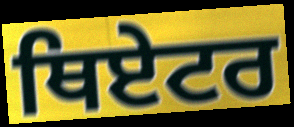
ਥਿਏਟਰ